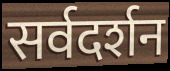
सर्वदर्शन